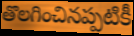
తొలగించినప్పటికీ